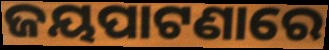
ଜୟପାଟଣାରେ